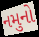
નમુનો